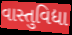
વાસ્તુવિદ્યા